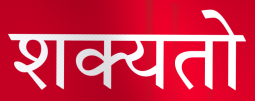
शक्यतो